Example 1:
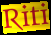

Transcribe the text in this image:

Riti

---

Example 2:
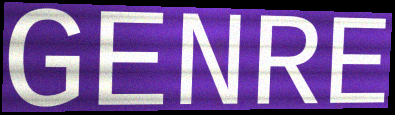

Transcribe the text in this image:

GENRE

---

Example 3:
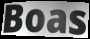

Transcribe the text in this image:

Boas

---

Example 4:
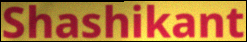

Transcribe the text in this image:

Shashikant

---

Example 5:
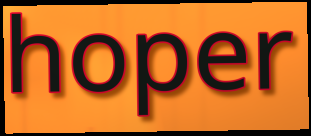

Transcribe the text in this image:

hoper